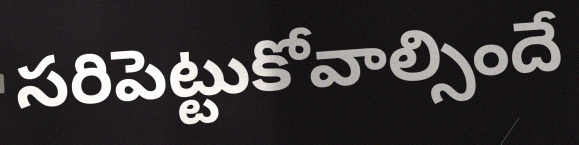
సరిపెట్టుకోవాల్సిందే